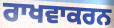
ਰਾਖਵਾਕਰਨ